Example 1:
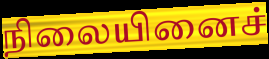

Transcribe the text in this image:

நிலையினைச்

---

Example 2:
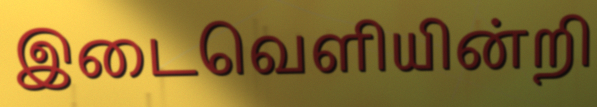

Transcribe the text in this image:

இடைவெளியின்றி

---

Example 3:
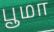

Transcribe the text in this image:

பூமா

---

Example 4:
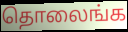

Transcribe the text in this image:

தொலைங்க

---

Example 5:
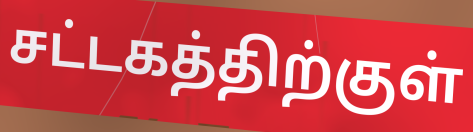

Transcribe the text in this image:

சட்டகத்திற்குள்